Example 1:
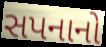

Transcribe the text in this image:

સપનાનો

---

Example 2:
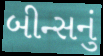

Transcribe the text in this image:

બીન્સનું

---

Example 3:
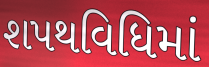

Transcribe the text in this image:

શપથવિધિમાં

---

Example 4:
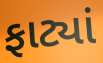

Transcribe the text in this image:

ફાટ્યાં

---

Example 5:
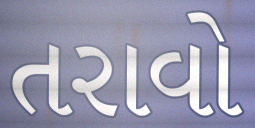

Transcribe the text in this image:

તરાવો